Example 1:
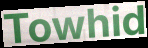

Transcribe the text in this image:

Towhid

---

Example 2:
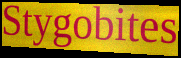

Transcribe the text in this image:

Stygobites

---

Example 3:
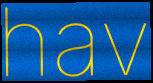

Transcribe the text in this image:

hav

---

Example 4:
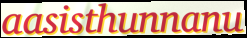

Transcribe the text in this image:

aasisthunnanu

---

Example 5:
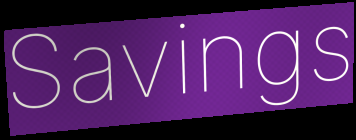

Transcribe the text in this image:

Savings